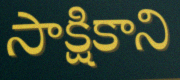
సాక్షికాని